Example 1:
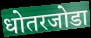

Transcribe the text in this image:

धोतरजोडा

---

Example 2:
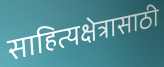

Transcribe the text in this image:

साहित्यक्षेत्रासाठी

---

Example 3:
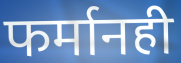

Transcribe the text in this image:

फर्मानही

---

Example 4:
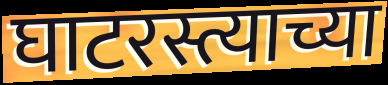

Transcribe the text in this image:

घाटरस्त्याच्या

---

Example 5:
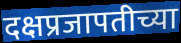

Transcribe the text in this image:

दक्षप्रजापतीच्या